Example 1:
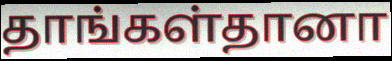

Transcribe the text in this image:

தாங்கள்தானா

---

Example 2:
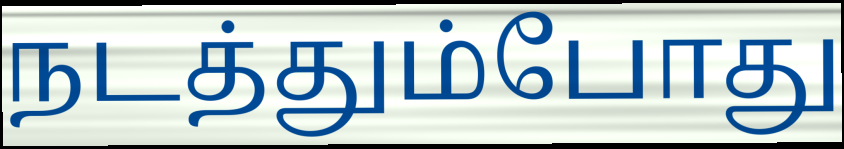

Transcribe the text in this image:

நடத்தும்போது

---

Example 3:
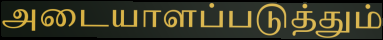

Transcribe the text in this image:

அடையாளப்படுத்தும்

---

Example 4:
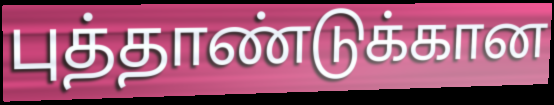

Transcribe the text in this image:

புத்தாண்டுக்கான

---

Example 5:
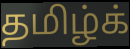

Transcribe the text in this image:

தமிழ்க்